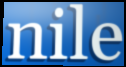
nile